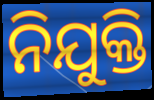
ନିଯୁକ୍ତି